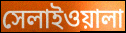
সেলাইওয়ালা